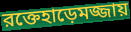
রক্তেহাড়েমজ্জায়